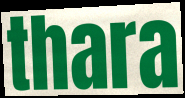
thara